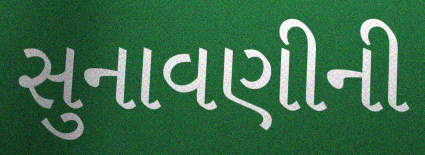
સુનાવણીની